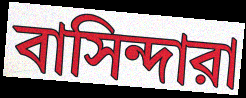
বাসিন্দারা